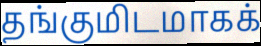
தங்குமிடமாகக்